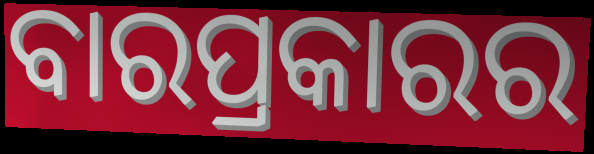
ବାରପ୍ରକାରର